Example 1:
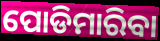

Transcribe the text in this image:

ପୋଡିମାରିବା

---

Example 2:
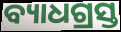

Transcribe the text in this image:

ବ୍ୟାଧଗ୍ରସ୍ତ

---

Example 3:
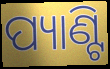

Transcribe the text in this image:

ପ୍ୟାଣ୍ଟି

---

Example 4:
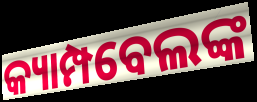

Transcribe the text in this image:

କ୍ୟାମ୍ପବେଲଙ୍କ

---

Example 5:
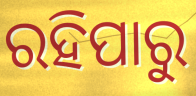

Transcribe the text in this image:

ରହିପାରୁ